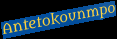
Antetokounmpo